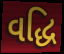
વદ્ધિ